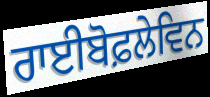
ਰਾਈਬੋਫ਼ਲੇਵਿਨ